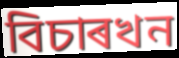
বিচাৰখন